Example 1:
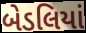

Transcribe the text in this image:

બેડલિયાં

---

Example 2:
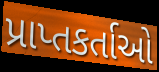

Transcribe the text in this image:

પ્રાપ્તકર્તાઓ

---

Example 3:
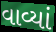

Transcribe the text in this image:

વાવ્યાં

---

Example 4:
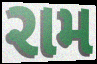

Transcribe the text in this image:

રામ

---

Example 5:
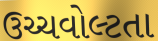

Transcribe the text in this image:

ઉચ્ચવોલ્ટતા